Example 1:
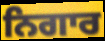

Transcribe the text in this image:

ਨਿਗਾਰ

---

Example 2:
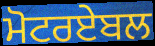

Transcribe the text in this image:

ਮੋਟਰਏਬਲ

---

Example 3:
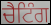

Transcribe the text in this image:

ਚੈਟਿੰਗ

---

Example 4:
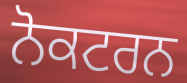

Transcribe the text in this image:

ਨੋਕਟਰਨ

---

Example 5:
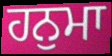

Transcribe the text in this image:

ਹਨੁਮਾ